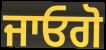
ਜਾਓਗੋ